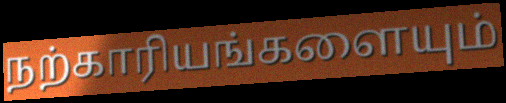
நற்காரியங்களையும்